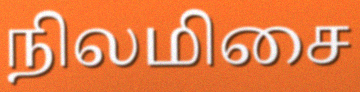
நிலமிசை